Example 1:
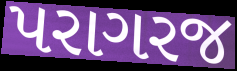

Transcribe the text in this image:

પરાગરજ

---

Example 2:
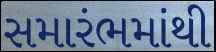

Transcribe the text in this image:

સમારંભમાંથી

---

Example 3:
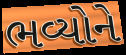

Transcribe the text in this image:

ભવ્યોને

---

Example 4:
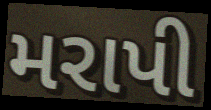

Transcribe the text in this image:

મરાપી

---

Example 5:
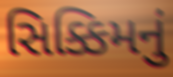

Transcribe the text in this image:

સિક્કિમનું